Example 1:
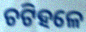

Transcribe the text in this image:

ଚଟିହଳେ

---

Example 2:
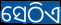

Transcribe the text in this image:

ସେଠିଏ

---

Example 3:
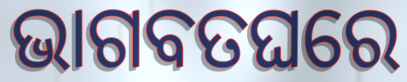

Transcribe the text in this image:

ଭାଗବତଘରେ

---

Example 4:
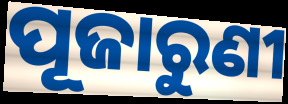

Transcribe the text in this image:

ପୂଜାରୁଣୀ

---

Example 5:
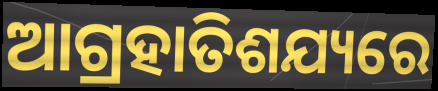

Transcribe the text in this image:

ଆଗ୍ରହାତିଶଯ୍ୟରେ